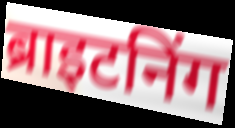
ब्राइटनिंग